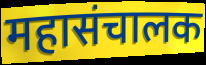
महासंचालक